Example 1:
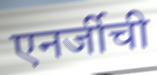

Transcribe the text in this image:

एनर्जीची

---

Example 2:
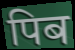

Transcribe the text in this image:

पिब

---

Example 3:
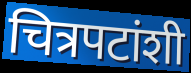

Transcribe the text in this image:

चित्रपटांशी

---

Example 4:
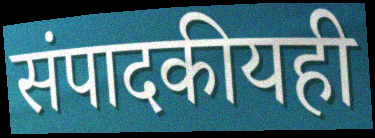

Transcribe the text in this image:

संपादकीयही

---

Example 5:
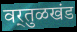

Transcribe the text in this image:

वर्तुळखंड